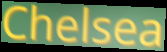
Chelsea